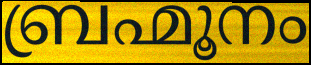
ബ്രഹ്മൂനം